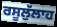
ਰਸੂਲੁੱਲਾਹ